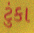
ટુંકા